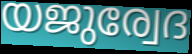
യജുര്വേദ